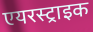
एयरस्ट्राइक